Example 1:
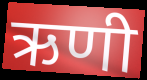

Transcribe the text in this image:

ऋणी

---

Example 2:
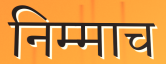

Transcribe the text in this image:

निम्माच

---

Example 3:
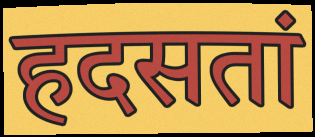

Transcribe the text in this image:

हदसतां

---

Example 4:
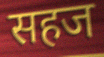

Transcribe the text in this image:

सहज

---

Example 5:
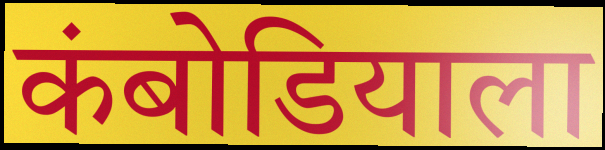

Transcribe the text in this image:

कंबोडियाला